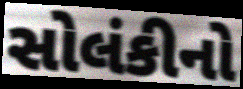
સોલંકીનો